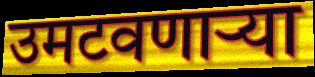
उमटवणार्‍या